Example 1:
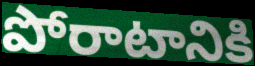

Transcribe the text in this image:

పోరాటానికి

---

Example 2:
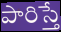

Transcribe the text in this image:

పారిస్తే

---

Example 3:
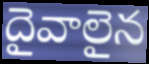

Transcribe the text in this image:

దైవాలైన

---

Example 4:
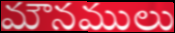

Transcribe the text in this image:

మౌనములు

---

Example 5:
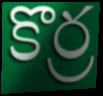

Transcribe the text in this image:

కొర్ర